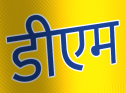
डीएम